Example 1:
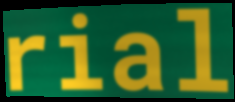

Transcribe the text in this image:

rial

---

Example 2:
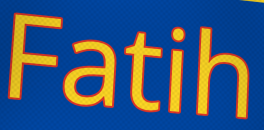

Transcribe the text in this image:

Fatih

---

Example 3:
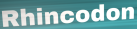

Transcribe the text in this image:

Rhincodon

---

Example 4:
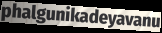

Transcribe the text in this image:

phalgunikadeyavanu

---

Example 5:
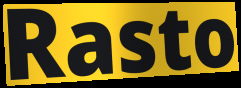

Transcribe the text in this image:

Rasto